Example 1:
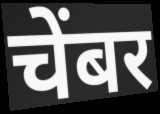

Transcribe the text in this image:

चेंबर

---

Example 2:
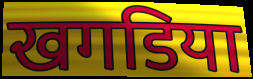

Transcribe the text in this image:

खगडिया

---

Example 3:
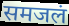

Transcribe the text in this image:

समजलं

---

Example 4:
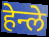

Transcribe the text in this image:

हेन्ले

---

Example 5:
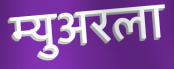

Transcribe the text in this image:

म्युअरला